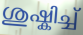
ശുഷ്കിച്ച്